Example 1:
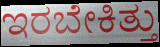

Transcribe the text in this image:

ಇರಬೇಕಿತ್ತು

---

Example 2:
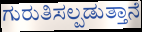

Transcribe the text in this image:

ಗುರುತಿಸಲ್ಪಡುತ್ತಾನೆ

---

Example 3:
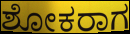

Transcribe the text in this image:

ಶೋಕರಾಗ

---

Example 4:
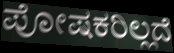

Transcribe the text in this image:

ಪೋಷಕರಿಲ್ಲದೆ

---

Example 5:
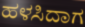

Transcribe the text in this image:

ಹಳಸಿದಾಗ